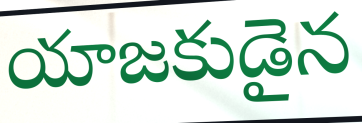
యాజకుడైన